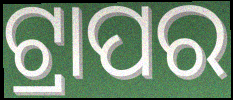
ଟ୍ରାପର